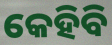
କେହିବି